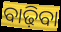
ବାଢ଼ିବା